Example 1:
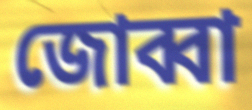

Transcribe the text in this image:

জোব্বা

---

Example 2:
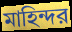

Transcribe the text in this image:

মাহিন্দর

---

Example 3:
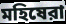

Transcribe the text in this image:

মহিষেরা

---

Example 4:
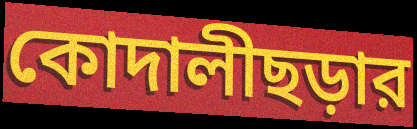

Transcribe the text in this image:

কোদালীছড়ার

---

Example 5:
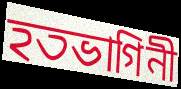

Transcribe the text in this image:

হতভাগিনী